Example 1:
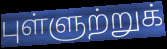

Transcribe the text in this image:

புள்ளுற்றுக்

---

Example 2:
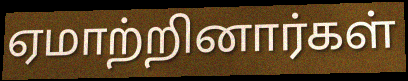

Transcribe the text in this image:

ஏமாற்றினார்கள்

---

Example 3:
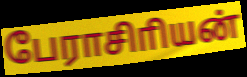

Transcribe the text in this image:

பேராசிரியன்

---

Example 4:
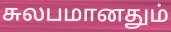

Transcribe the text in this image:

சுலபமானதும்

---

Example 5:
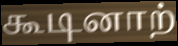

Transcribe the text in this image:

கூடினாற்